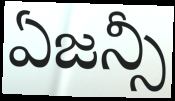
ఏజన్సీ